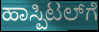
ಹಾಸ್ಪಿಟಲ್‌ಗೆ